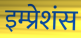
इम्प्रेशंस